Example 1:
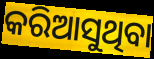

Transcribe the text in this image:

କରିଆସୁଥିବା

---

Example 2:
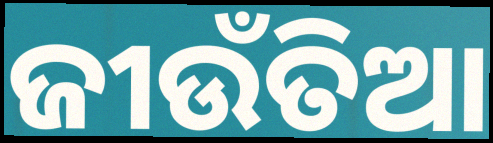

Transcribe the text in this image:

ଜୀଉଁତିଆ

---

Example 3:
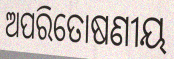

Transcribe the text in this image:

ଅପରିତୋଷଣୀୟ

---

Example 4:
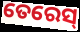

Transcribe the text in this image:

ତେରେସ୍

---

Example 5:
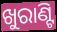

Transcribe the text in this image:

ଖୁରାଣ୍ଟି